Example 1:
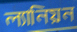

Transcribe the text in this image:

ল্যানিয়ন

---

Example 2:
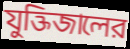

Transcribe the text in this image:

যুক্তিজালের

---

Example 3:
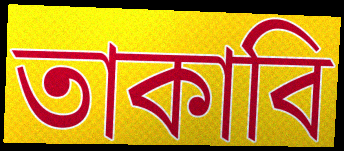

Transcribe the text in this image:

তাকাবি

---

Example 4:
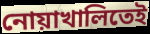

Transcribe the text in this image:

নোয়াখালিতেই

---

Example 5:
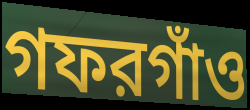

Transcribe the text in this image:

গফরগাঁও